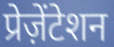
प्रेज़ेंटेशन